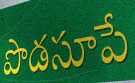
పొడసూపే